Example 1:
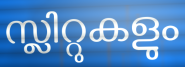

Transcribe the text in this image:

സ്ലിറ്റുകളും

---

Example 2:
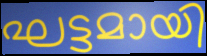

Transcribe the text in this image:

ഘട്ടമായി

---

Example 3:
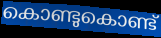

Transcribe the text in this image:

കൊണ്ടുകൊണ്ട്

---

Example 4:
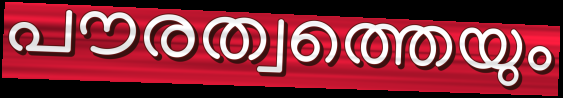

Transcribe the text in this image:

പൗരത്വത്തെയും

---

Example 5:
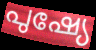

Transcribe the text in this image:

പുഷ്യേ